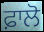
ਫ਼ਾਲੋ